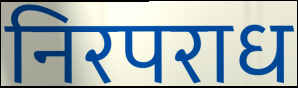
निरपराध